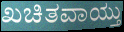
ಖಚಿತವಾಯ್ತು